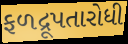
ફળદ્રૂપતારોધી